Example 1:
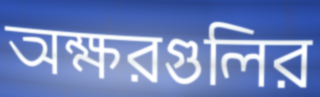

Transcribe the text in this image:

অক্ষরগুলির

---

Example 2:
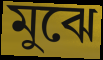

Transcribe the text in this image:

মুঝে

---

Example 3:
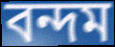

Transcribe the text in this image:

বন্দম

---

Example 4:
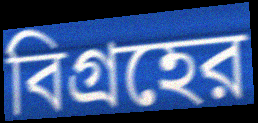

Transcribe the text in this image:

বিগ্রহের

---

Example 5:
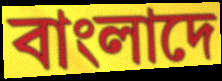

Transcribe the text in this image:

বাংলাদে